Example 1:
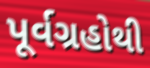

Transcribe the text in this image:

પૂર્વગ્રહોથી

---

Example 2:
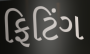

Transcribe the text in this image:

ફિટિંગ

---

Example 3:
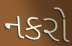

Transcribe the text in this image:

નકરો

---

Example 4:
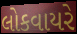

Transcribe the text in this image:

લોકવાયરે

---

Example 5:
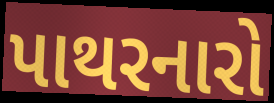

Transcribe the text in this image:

પાથરનારો